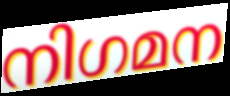
നിഗമന